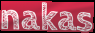
nakas